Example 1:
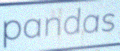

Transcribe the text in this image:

pandas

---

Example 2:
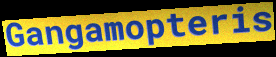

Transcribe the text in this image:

Gangamopteris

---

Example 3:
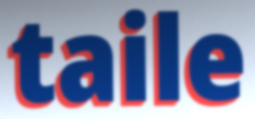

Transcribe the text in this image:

taile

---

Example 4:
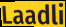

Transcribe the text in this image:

Laadli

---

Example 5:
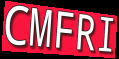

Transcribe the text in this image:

CMFRI